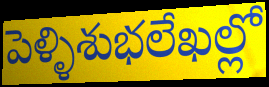
పెళ్ళిశుభలేఖల్లో